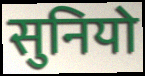
सुनियो